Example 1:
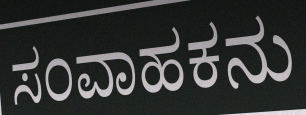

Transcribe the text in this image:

ಸಂವಾಹಕನು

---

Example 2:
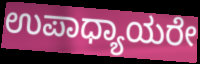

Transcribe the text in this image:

ಉಪಾಧ್ಯಾಯರೇ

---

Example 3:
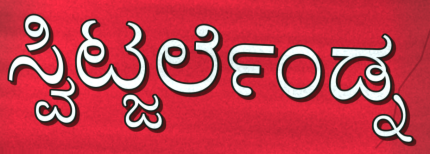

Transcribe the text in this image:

ಸ್ವಿಟ್ಜರ್ಲೆಂಡ್ನ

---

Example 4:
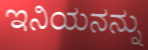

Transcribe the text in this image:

ಇನಿಯನನ್ನು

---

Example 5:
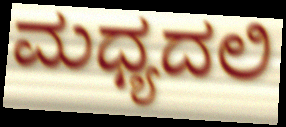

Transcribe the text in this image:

ಮಧ್ಯದಲಿ